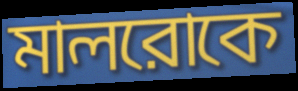
মালরোকে